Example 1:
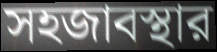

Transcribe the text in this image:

সহজাবস্থার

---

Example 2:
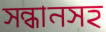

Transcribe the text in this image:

সন্ধানসহ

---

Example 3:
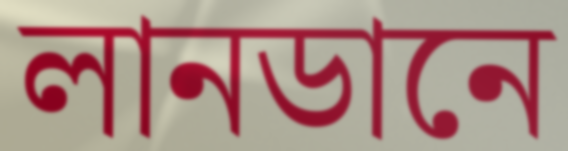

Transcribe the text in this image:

লানডানে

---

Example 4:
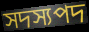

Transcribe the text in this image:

সদস্যপদ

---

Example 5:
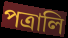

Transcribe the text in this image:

পত্রালি